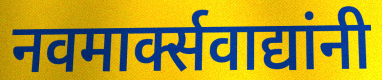
नवमार्क्सवाद्यांनी